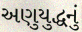
અણુયુદ્ધનું